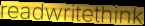
readwritethink